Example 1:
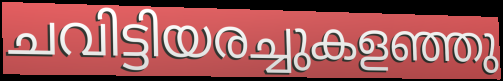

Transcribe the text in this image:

ചവിട്ടിയരച്ചുകളഞ്ഞു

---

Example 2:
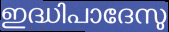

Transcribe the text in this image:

ഇദ്ധിപാദേസു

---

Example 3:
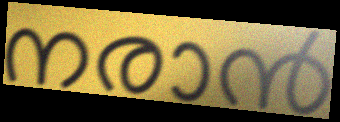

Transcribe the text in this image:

നരാൻ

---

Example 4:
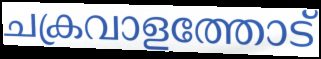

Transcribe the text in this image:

ചക്രവാളത്തോട്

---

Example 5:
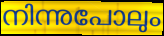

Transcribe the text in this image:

നിന്നുപോലും